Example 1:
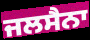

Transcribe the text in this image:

ਜਲਸੈਨਾ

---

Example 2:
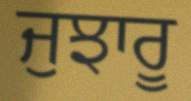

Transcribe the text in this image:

ਜੁਝਾਰੂ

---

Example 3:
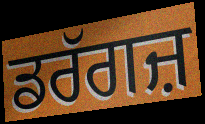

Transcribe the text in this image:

ਡਰੱਗਜ਼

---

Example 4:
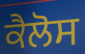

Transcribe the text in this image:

ਕੈਲੋਸ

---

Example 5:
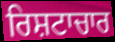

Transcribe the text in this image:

ਰਿਸ਼ਟਾਚਾਰ